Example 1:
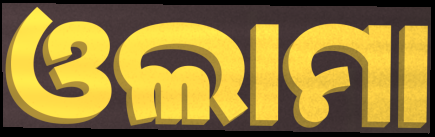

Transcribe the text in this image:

ଓଲାମା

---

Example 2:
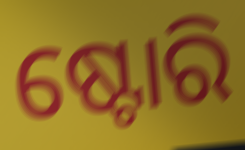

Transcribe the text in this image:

ଷ୍ଟୋରି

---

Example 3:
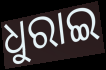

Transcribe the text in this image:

ଧୁରାଇ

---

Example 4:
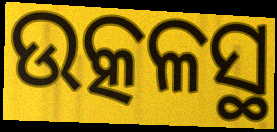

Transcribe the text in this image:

ଉତ୍କଳସ୍ଥ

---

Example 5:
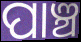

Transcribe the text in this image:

ପାଞ୍ଚ